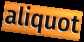
aliquot